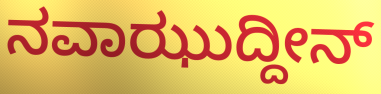
ನವಾಝುದ್ದೀನ್